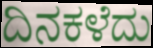
ದಿನಕಳೆದು